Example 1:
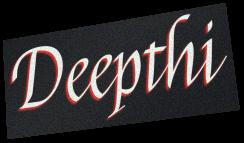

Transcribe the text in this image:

Deepthi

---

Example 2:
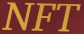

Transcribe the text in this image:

NFT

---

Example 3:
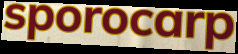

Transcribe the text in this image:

sporocarp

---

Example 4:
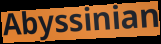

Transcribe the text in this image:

Abyssinian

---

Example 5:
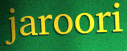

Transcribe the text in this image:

jaroori